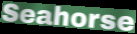
Seahorse